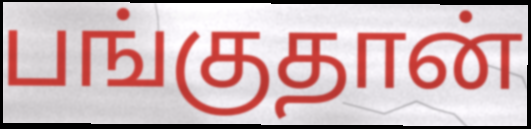
பங்குதான்